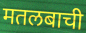
मतलबाची